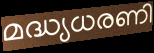
മദ്ധ്യധരണി